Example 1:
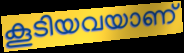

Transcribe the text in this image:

കൂടിയവയാണ്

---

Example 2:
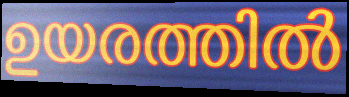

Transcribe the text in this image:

ഉയരത്തിൽ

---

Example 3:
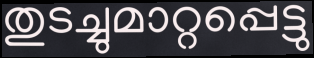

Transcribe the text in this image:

തുടച്ചുമാറ്റപ്പെട്ടു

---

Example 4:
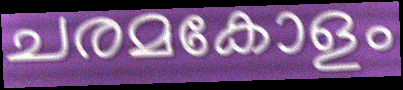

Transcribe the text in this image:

ചരമകോളം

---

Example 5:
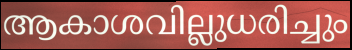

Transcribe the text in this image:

ആകാശവില്ലുധരിച്ചും